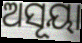
ଅସୂୟା